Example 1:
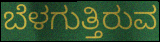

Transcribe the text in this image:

ಬೆಳಗುತ್ತಿರುವ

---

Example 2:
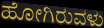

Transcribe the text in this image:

ಹೋಗಿರುವಳು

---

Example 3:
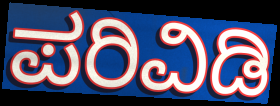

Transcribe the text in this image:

ಪರಿವಿಡಿ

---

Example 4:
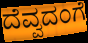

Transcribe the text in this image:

ದೆವ್ವದಂಗೆ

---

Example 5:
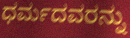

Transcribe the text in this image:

ಧರ್ಮದವರನ್ನು